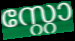
സ്റ്റോ